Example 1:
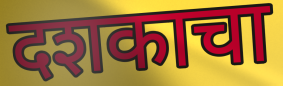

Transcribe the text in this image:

दशकाचा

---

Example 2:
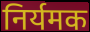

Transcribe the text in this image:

निर्यमक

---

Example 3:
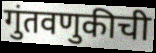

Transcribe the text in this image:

गुंतवणुकीची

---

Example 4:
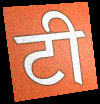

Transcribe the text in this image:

टी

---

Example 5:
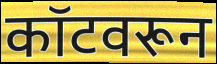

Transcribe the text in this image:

कॉटवरून